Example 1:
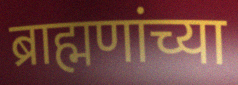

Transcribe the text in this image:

ब्राह्मणांच्या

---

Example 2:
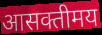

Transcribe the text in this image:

आसक्तीमय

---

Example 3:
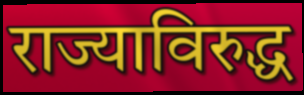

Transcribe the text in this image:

राज्याविरुद्ध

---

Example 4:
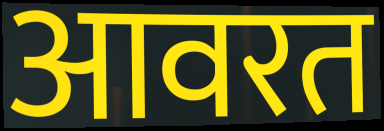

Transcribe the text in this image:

आवरत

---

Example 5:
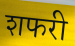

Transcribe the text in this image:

शफरी